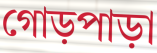
গোড়পাড়া